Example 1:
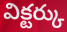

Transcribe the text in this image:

విక్టర్కు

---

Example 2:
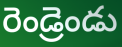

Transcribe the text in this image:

రెండ్రెండు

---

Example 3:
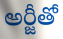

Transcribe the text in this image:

అర్జీతో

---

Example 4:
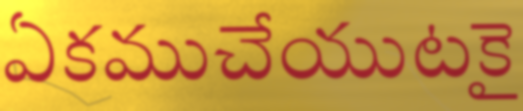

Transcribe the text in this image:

ఏకముచేయుటకై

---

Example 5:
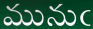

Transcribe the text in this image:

మునుఁ